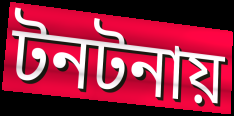
টনটনায়